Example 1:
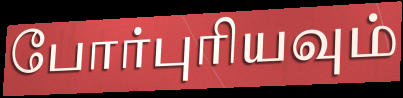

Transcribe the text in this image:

போர்புரியவும்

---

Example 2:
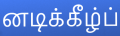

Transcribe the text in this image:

னடிக்கீழ்ப்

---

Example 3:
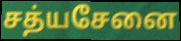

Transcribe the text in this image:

சத்யசேனை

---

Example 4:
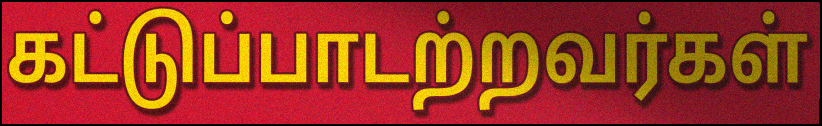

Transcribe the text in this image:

கட்டுப்பாடற்றவர்கள்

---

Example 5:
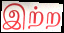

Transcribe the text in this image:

இற்ற